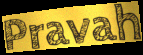
Pravah